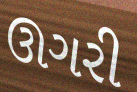
ઊગરી